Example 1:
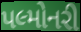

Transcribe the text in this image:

પલ્મોનરી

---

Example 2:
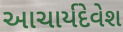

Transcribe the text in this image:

આચાર્યદેવેશ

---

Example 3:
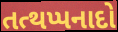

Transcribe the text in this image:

તત્થપ્પનાદો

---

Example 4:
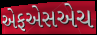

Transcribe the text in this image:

એફએસએચ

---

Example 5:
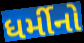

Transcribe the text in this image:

ધર્મીનો